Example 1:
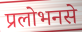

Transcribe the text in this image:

प्रलोभनसे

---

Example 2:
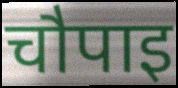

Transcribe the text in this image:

चौपाइ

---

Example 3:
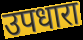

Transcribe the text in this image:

उपधारा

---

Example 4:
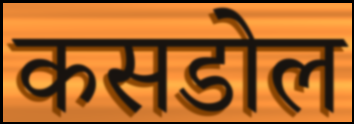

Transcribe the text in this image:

कसडोल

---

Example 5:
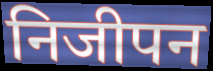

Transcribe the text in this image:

निजीपन